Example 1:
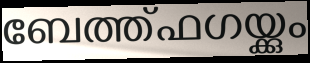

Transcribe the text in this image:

ബേത്ത്ഫഗയ്ക്കും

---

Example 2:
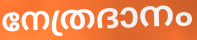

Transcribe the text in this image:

നേത്രദാനം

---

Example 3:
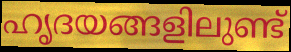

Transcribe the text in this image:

ഹൃദയങ്ങളിലുണ്ട്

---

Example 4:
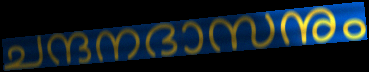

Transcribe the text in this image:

ചന്ദനദാസനും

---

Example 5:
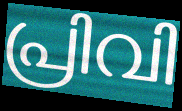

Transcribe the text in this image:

പ്രിവി